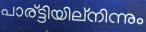
പാര്ട്ടിയില്നിന്നും